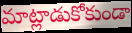
మాట్లాడుకోకుండా